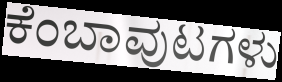
ಕೆಂಬಾವುಟಗಳು